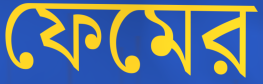
ফেমের